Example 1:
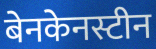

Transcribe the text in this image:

बेनकेनस्टीन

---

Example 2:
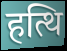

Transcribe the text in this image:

हत्थि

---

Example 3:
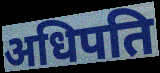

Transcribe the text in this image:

अधिपति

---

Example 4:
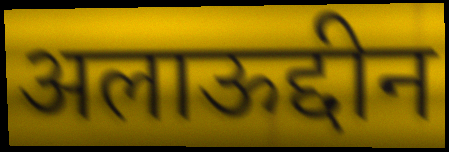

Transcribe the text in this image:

अलाऊद्दीन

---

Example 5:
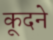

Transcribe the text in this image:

कूदने